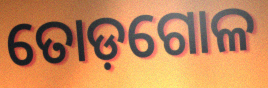
ତୋଡ଼ଗୋଳ